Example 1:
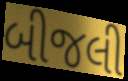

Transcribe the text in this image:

બીજલી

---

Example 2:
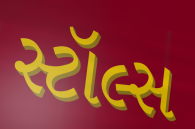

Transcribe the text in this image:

સ્ટૉલ્સ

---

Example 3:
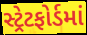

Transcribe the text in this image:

સ્ટ્રેટફોર્ડમાં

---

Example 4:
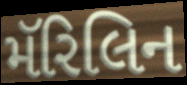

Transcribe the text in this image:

મૅરિલિન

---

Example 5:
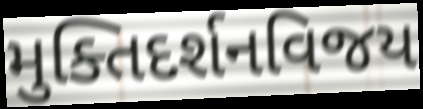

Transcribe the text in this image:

મુક્તિદર્શનવિજય